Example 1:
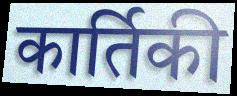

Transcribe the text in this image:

कार्तिकी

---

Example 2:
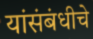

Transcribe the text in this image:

यांसंबंधीचे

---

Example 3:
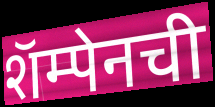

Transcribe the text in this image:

शॅम्पेनची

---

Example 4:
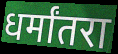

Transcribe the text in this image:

धर्मांतरा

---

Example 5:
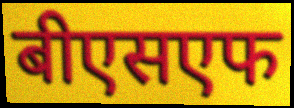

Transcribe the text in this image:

बीएसएफ